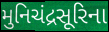
મુનિચંદ્રસૂરિના